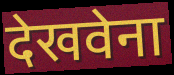
देखवेना